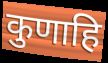
कुणाहि